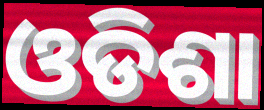
ଓଡିଶା